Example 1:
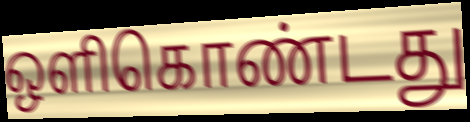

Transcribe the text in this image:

ஒளிகொண்டது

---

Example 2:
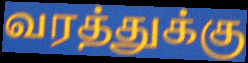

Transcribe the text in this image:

வரத்துக்கு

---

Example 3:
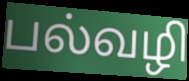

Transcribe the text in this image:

பல்வழி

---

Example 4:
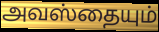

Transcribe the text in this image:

அவஸ்தையும்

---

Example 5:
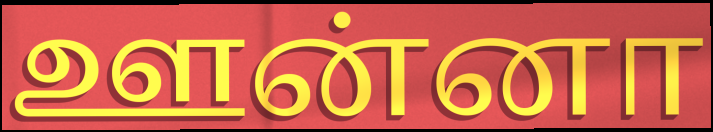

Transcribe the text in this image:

ஊன்னா